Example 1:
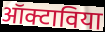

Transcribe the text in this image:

ऑक्टाविया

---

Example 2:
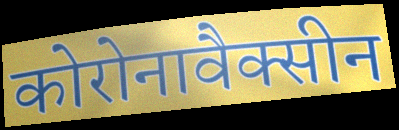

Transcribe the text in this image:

कोरोनावैक्सीन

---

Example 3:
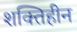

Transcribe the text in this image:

शक्तिहीन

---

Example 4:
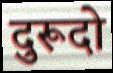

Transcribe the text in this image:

दुरूदो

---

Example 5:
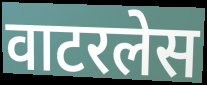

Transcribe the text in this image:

वाटरलेस